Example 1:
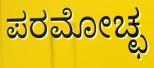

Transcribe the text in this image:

ಪರಮೋಚ್ಛ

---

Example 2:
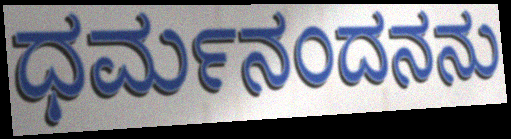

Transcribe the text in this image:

ಧರ್ಮನಂದನನು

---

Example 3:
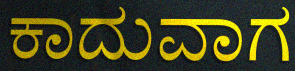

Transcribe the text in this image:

ಕಾದುವಾಗ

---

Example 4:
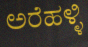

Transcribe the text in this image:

ಅರೆಹಳ್ಳಿ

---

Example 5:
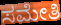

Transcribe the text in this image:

ಸಮೇತಿ